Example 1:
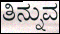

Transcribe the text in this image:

ತಿನ್ನುವ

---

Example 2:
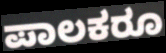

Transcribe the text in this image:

ಪಾಲಕರೂ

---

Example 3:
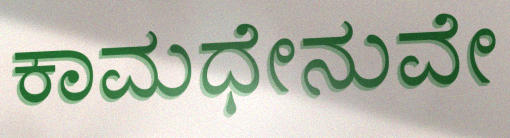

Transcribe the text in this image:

ಕಾಮಧೇನುವೇ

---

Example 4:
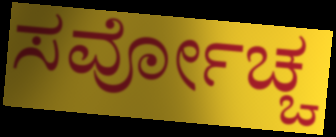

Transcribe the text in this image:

ಸರ್ವೋಚ್ಚ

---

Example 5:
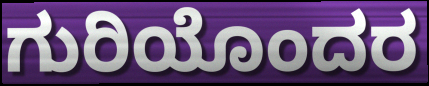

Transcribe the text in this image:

ಗುರಿಯೊಂದರ